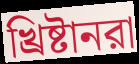
খ্রিষ্টানরা